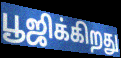
பூஜிக்கிறது